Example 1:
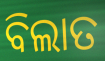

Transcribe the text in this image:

ବିଲାତ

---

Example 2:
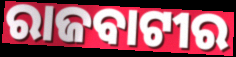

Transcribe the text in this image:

ରାଜବାଟୀର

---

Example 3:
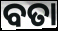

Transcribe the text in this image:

ବତା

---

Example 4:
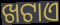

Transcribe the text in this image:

ଖଟାଏ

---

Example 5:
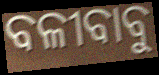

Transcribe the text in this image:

ବଳୀବାବୁ